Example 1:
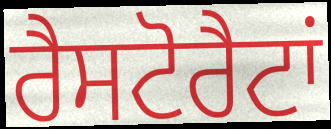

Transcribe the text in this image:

ਰੈਸਟੋਰੈਟਾਂ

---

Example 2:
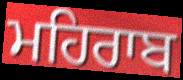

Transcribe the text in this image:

ਮਹਿਰਾਬ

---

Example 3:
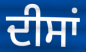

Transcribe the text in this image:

ਦੀਸਾਂ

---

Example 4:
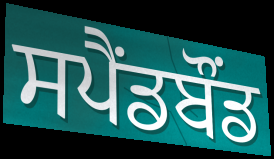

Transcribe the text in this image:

ਸਪੈਂਡਬੌਂਡ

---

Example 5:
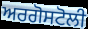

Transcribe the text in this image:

ਅਰਗੋਸਟੋਲੀ